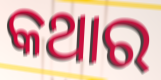
କଥାର